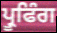
ਪ੍ਰੂਫਿੰਗ